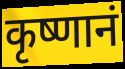
कृष्णानं